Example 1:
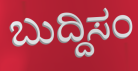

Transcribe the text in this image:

ಬುದ್ದಿಸಂ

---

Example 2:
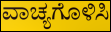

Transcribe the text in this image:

ವಾಚ್ಯಗೊಳಿಸಿ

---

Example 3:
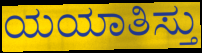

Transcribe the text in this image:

ಯಯಾತಿಸ್ತು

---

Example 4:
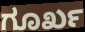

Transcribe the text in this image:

ಗೂರ್ಖ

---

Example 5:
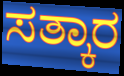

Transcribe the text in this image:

ಸತ್ಕಾರ